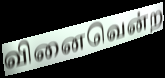
வினைவென்ற